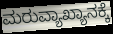
ಮರುವ್ಯಾಖ್ಯಾನಕ್ಕೆ